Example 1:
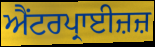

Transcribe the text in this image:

ਐਂਟਰਪ੍ਰਾਈਜ਼ਜ਼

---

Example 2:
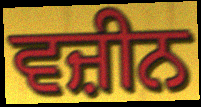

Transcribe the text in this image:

ਵਜ਼ੀਨ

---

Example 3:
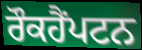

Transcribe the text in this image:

ਰੌਕਹੈਂਪਟਨ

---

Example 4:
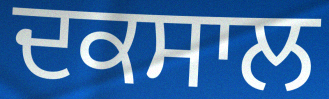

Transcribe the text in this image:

ਦਕਸਾਲ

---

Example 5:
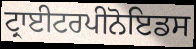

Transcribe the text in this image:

ਟ੍ਰਾਈਟਰਪੀਨੋਇਡਸ